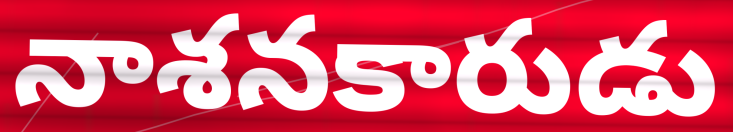
నాశనకారుడు